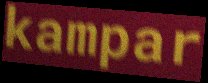
kampar